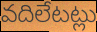
వదిలేటట్లు